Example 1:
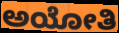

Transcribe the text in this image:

ಅಯೋತಿ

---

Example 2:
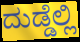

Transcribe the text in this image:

ದುಡ್ಡೆಲ್ಲಿ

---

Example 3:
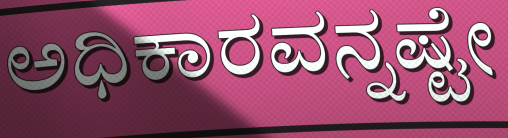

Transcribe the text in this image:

ಅಧಿಕಾರವನ್ನಷ್ಟೇ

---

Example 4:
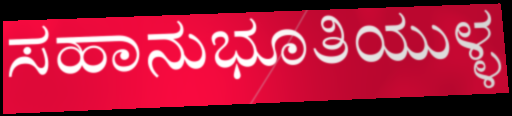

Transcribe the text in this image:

ಸಹಾನುಭೂತಿಯುಳ್ಳ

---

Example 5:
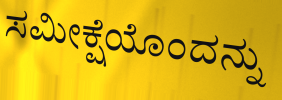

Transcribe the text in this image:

ಸಮೀಕ್ಷೆಯೊಂದನ್ನು